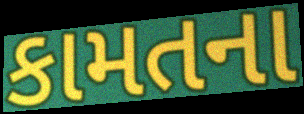
કામતના